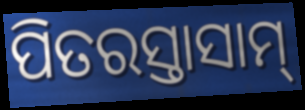
ପିତରସ୍ତାସାମ୍